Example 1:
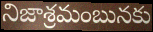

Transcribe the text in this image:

నిజాశ్రమంబునకు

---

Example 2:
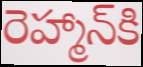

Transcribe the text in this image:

రెహ్మాన్‌కి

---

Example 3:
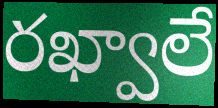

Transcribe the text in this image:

రఖ్వాలే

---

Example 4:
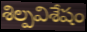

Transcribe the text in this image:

శిల్పవిశేషం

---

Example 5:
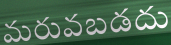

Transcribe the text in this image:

మరువబడదు